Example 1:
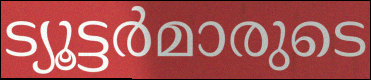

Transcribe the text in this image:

ട്യൂട്ടർമാരുടെ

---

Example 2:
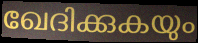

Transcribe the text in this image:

ഖേദിക്കുകയും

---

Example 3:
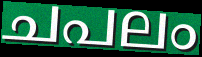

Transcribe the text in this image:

ചപലം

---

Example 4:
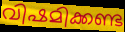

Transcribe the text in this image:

വിഷമിക്കണ്ട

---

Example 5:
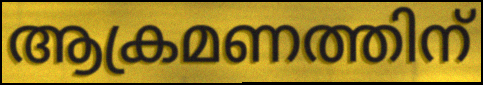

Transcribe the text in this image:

ആക്രമണത്തിന്